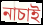
নাচাই